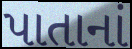
પાતાનાં